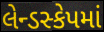
લેન્ડસ્કેપમાં